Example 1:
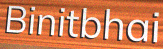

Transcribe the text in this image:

Binitbhai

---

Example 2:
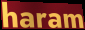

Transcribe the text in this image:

haram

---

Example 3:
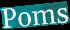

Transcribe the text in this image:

Poms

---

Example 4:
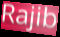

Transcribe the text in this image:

Rajib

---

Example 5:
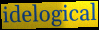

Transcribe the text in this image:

idelogical